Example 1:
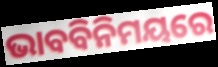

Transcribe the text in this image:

ଭାବବିନିମୟରେ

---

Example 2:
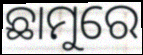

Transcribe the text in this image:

ଛାମୁରେ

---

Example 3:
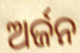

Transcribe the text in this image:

ଅର୍ଜନ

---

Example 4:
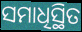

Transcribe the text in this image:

ସମାଧିସ୍ଥିତ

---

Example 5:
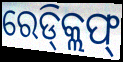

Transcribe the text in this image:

ରେଡ୍କ୍ଲିଫ୍